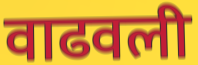
वाढवली